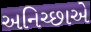
અનિચ્છાએ